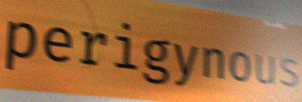
perigynous